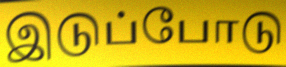
இடுப்போடு